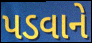
પડવાને